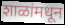
शाळांमधून